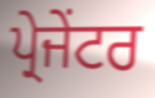
ਪ੍ਰੇਜੇਂਟਰ